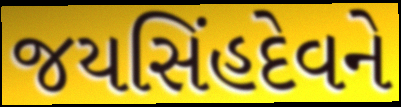
જયસિંહદેવને